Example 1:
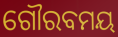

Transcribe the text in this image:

ଗୌରବମୟ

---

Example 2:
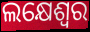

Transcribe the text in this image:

ଲକ୍ଷେଶ୍ୱର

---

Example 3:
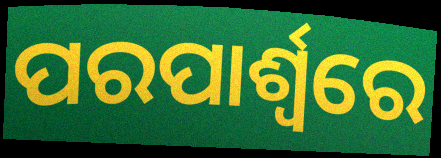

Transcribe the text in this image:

ପରପାର୍ଶ୍ୱରେ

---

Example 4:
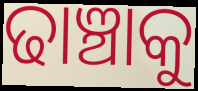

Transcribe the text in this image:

ଢାଞ୍ଚାକୁ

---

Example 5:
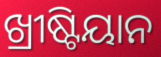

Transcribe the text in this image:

ଖ୍ରୀଷ୍ଟିୟାନ